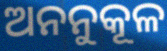
ଅନନୁକୂଳ